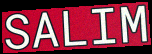
SALIM